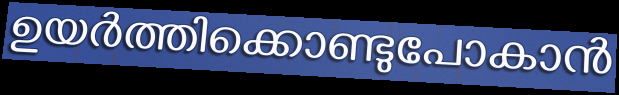
ഉയർത്തിക്കൊണ്ടുപോകാൻ